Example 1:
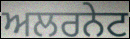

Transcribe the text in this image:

ਅਲਰਨੇਟ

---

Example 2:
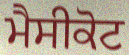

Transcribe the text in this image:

ਮੈਸੀਕੋਟ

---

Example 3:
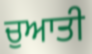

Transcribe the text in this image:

ਚੁਆਤੀ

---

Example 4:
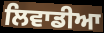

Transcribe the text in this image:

ਲਿਵਾਡੀਆ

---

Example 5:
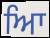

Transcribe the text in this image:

ਆਿ